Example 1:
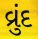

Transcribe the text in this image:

વ્રુંદ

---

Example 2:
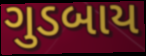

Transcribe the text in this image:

ગુડબાય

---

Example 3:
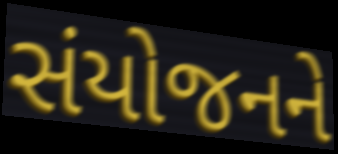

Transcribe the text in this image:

સંયોજનને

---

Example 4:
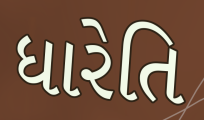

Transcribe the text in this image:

ધારેતિ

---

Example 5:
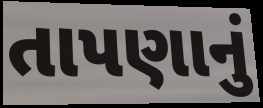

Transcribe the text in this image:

તાપણાનું